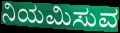
ನಿಯಮಿಸುವ